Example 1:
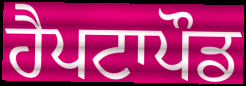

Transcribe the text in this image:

ਹੈਪਟਾਪੌਡ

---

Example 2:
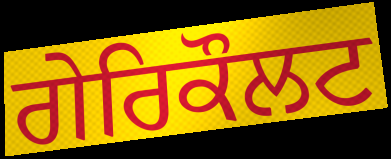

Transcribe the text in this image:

ਗੇਰਿਕੌਲਟ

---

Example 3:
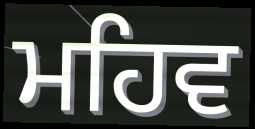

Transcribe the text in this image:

ਮਹਿਵ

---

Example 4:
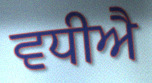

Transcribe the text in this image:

ਵਧੀਐ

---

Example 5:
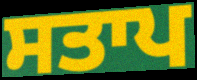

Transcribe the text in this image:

ਸਤਾਪ